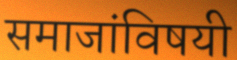
समाजांविषयी